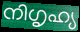
നിഗൃഹ്യ